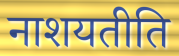
नाशयतीति